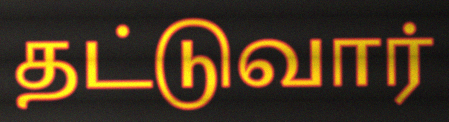
தட்டுவார்